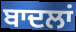
ਬਾਦਲਾਂ